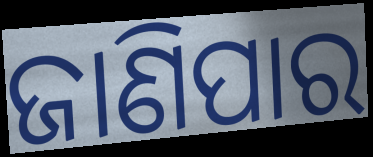
ଜାଣିପାର